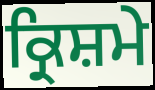
ਕ੍ਰਿਸ਼ਮੇ